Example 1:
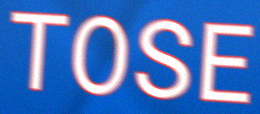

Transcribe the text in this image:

TOSE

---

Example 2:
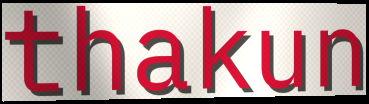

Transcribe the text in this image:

thakun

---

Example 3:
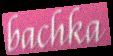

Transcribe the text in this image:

bachka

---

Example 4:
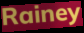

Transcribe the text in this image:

Rainey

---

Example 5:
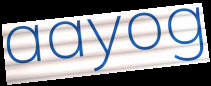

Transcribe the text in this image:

aayog